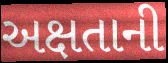
અક્ષતાની